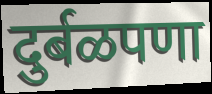
दुर्बळपणा